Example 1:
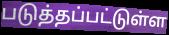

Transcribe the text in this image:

படுத்தப்பட்டுள்ள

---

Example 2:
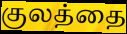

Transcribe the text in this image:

குலத்தை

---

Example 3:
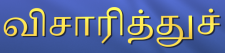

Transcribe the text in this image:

விசாரித்துச்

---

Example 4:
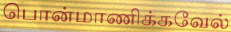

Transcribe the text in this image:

பொன்மாணிக்கவேல்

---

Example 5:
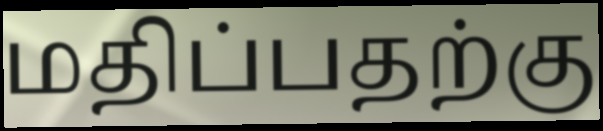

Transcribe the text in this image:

மதிப்பதற்கு